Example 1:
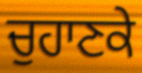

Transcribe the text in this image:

ਚੁਹਾਣਕੇ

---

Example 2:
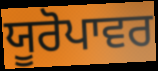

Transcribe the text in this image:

ਯੂਰੋਪਾਵਰ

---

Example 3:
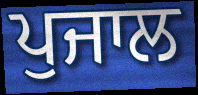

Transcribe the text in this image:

ਪੁਜਾਲ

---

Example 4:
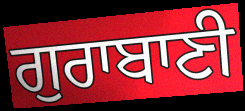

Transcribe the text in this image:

ਗੁਰਾਬਾਣੀ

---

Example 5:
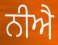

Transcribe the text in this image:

ਨੀਐ